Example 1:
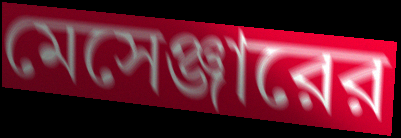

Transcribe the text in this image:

মেসেঞ্জারের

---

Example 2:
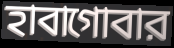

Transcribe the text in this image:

হাবাগোবার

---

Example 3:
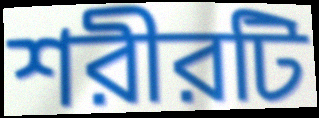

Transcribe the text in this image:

শরীরটি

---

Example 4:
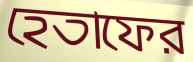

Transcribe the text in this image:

হেতাফের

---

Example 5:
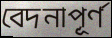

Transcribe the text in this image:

বেদনাপূর্ণ